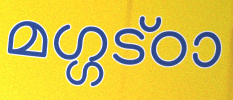
മഗ്ഗട്ഠാ